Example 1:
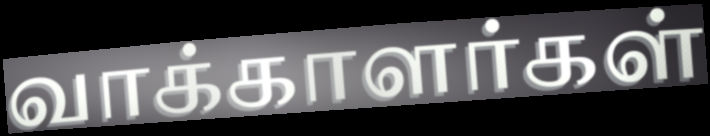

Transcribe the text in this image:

வாக்காளர்கள்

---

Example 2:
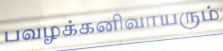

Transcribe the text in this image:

பவழக்கனிவாயரும்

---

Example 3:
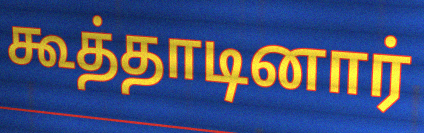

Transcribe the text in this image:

கூத்தாடினார்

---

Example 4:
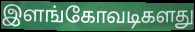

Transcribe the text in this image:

இளங்கோவடிகளது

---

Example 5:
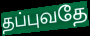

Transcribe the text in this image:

தப்புவதே